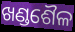
ଖଣ୍ଡଶୈଳ